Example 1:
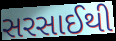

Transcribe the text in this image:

સરસાઈથી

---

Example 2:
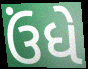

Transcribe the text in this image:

ઉંધે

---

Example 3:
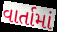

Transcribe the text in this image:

વાર્તામાં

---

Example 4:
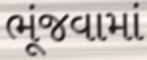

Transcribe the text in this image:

ભૂંજવામાં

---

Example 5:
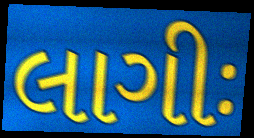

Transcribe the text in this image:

લાગીઃ